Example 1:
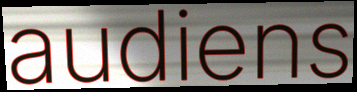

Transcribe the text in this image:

audiens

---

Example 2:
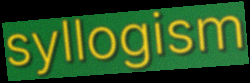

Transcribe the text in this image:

syllogism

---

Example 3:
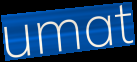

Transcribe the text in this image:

umat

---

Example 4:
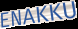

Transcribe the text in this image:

ENAKKU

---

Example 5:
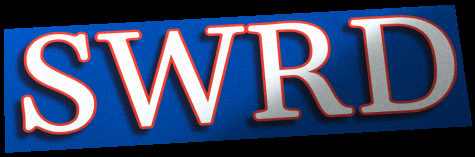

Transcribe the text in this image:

SWRD